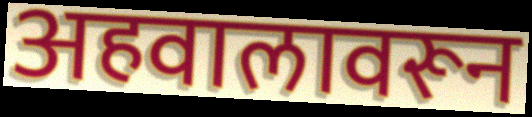
अहवालावरून